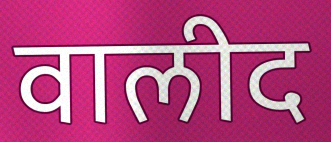
वालीद